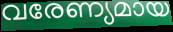
വരേണ്യമായ